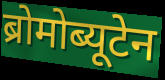
ब्रोमोब्यूटेन